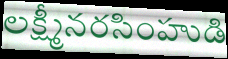
లక్ష్మీనరసింహుడి